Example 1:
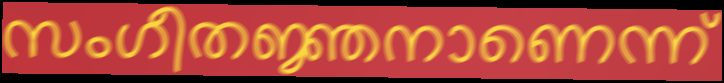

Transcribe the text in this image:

സംഗീതജ്ഞനാണെന്ന്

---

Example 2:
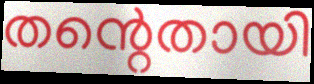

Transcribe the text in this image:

തന്റെതായി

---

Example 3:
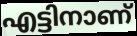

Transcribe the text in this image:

എട്ടിനാണ്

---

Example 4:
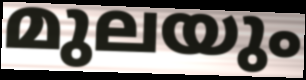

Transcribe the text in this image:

മുലയും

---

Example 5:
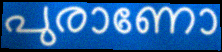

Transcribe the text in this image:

പുരാണോ